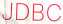
JDBC